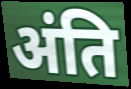
अंति